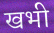
खभी